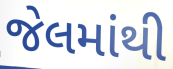
જેલમાંથી